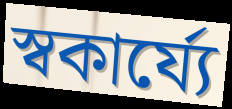
স্বকার্য্যে